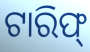
ଟାରିଫ୍